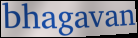
bhagavan